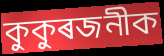
কুকুৰজনীক